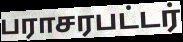
பராசரபட்டர்